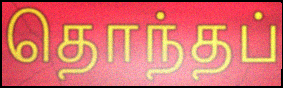
தொந்தப்